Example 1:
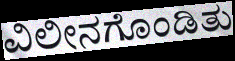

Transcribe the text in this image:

ವಿಲೀನಗೊಂಡಿತು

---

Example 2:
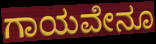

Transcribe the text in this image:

ಗಾಯವೇನೂ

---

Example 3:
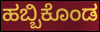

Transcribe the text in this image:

ಹಬ್ಬಿಕೊಂಡ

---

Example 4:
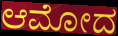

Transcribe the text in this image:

ಆಮೋದ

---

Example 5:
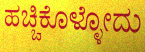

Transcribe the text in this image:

ಹಚ್ಚಿಕೊಳ್ಳೋದು